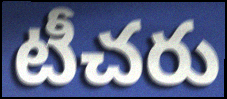
టీచరు